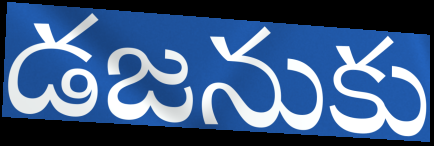
డజనుకు